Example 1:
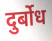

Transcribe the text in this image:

दुर्बोध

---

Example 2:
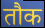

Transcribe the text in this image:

तौक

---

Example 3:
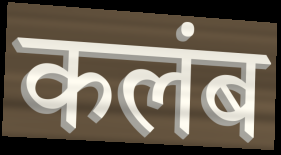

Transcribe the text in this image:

कलंब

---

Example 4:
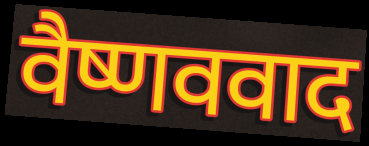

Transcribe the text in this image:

वैष्णववाद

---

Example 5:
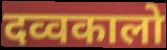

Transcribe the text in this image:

दव्वकालो